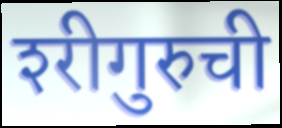
श्रीगुरुची